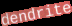
dendrite